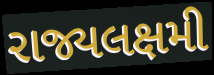
રાજ્યલક્ષમી